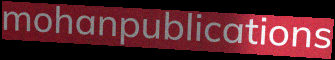
mohanpublications